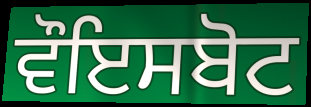
ਵੌਇਸਬੋਟ